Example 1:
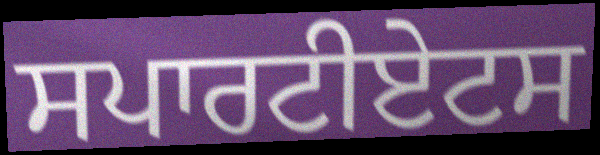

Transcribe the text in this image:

ਸਪਾਰਟੀਏਟਸ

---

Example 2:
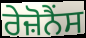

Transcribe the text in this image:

ਰੇਜ਼ੋਨੈਂਸ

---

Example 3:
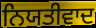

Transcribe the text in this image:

ਨਿਯਤੀਵਾਦ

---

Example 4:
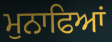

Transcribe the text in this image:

ਮੁਨਾਫਿਆਂ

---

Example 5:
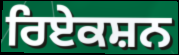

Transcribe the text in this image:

ਰਿਏਕਸ਼ਨ